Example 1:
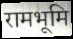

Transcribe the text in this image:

रामभूमि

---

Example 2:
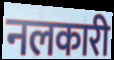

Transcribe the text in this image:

नलकारी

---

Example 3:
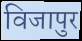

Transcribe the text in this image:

विजापुर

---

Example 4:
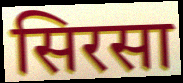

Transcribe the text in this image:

सिरसा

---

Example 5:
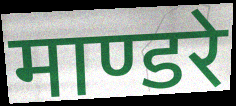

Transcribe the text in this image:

माण्डरे